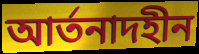
আর্তনাদহীন